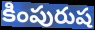
కింపురుష